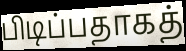
பிடிப்பதாகத்